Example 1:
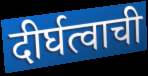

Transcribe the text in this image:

दीर्घत्वाची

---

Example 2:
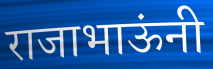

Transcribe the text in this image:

राजाभाऊंनी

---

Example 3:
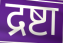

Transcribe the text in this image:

द्रष्टा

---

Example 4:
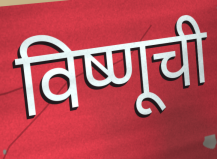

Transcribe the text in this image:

विष्णूची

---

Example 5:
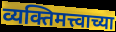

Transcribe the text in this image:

व्यक्तिमत्त्वाच्या